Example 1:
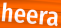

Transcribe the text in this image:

heera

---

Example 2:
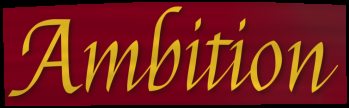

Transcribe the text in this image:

Ambition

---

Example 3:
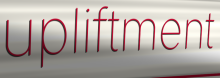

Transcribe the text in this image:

upliftment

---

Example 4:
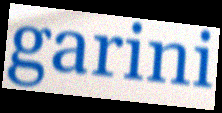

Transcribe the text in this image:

garini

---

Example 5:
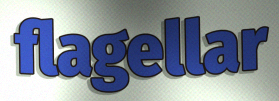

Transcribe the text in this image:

flagellar